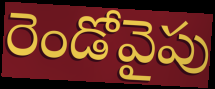
రెండోవైపు